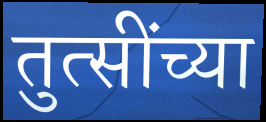
तुत्सींच्या